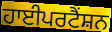
ਹਾਈਪਰਟੈਂਸ਼ਨ